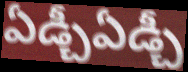
ఏడ్చీఏడ్చీ